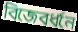
বিজেবর্ধনে